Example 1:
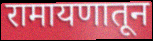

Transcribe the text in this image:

रामायणातून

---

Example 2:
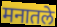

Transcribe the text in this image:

मनातले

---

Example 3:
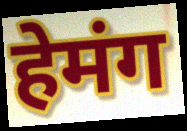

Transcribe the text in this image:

हेमंग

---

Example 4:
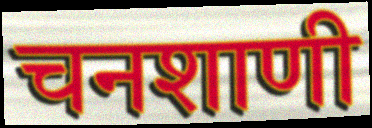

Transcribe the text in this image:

चनशाणी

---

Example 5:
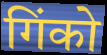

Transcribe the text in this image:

गिंको